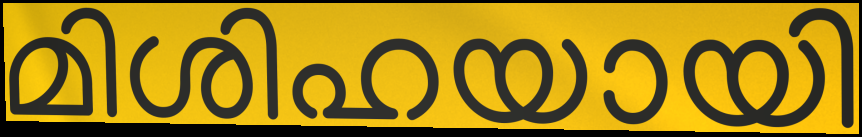
മിശിഹയായി